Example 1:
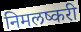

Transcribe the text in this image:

निमलष्करी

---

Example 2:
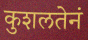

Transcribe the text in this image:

कुशलतेनं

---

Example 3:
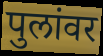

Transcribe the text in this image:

पुलांवर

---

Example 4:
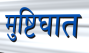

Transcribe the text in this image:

मुष्टिघात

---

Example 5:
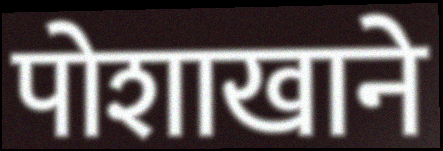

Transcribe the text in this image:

पोशाखाने